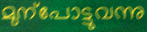
മുന്പോട്ടുവന്നു